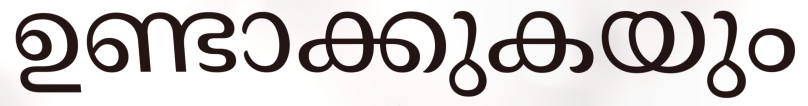
ഉണ്ടാക്കുകയും